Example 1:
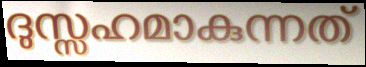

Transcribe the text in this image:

ദുസ്സഹമാകുന്നത്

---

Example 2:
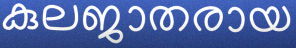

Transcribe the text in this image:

കുലജാതരായ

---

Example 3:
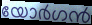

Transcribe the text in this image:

യോർഗൻ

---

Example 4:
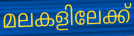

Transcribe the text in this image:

മലകളിലേക്ക്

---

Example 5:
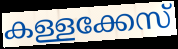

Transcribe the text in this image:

കള്ളക്കേസ്